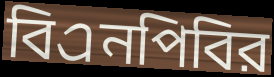
বিএনপিবির